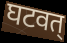
घटवत्